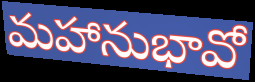
మహానుభావో